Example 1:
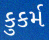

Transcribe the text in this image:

કુકર્મ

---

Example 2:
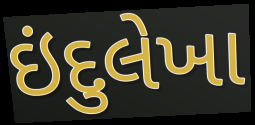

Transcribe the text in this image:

ઇંદુલેખા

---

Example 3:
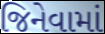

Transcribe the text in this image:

જિનેવામાં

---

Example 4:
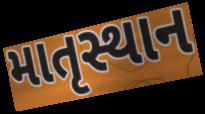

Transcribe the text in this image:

માતૃસ્થાન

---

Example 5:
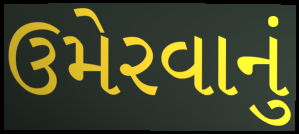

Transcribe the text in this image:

ઉમેરવાનું